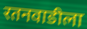
रतनवाडीला